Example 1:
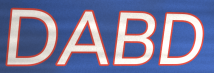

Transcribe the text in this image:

DABD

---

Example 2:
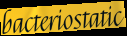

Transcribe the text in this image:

bacteriostatic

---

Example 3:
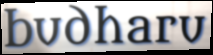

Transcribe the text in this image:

budharu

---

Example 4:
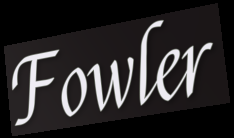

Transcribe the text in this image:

Fowler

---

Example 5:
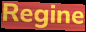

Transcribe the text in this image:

Regine